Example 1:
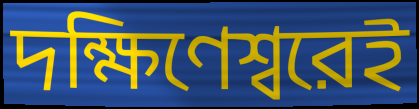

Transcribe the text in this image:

দক্ষিণেশ্বরেই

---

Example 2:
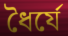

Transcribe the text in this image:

ধৈর্যে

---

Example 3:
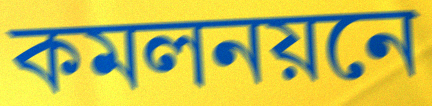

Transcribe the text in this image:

কমলনয়নে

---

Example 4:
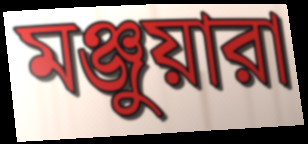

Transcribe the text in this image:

মঞ্জুয়ারা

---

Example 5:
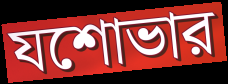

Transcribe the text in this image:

যশোভার